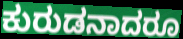
ಕುರುಡನಾದರೂ